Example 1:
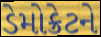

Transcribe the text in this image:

ડેમોક્રેટને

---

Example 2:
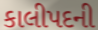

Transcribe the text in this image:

કાલીપદની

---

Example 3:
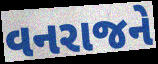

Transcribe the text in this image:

વનરાજને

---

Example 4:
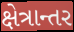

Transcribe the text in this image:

ક્ષેત્રાન્તર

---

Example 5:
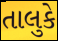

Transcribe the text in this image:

તાલુકે